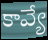
కావ్యే